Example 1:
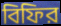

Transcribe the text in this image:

বিফির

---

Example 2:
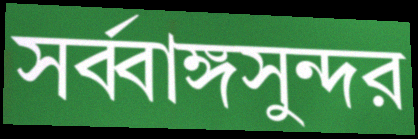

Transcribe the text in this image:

সর্ব্বাঙ্গসুন্দর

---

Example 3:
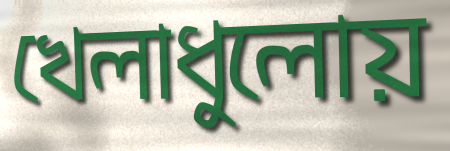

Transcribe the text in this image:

খেলাধুলোয়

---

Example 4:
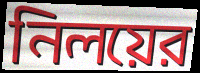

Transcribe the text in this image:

নিলয়ের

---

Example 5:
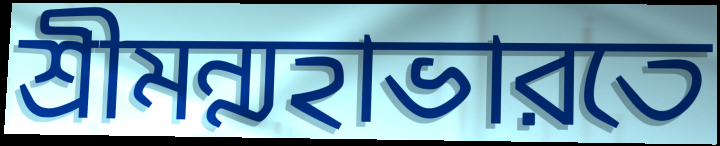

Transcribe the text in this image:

শ্রীমন্মহাভারতে